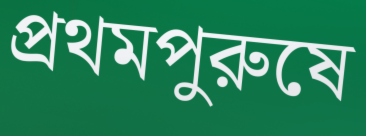
প্রথমপুরুষে